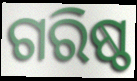
ଗରିଷ୍ଠ